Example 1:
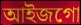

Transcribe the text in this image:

আইজগো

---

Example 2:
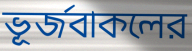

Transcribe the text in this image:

ভূর্জবাকলের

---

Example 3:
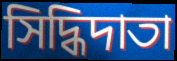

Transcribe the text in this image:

সিদ্ধিদাতা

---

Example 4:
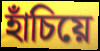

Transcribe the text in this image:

হাঁচিয়ে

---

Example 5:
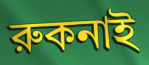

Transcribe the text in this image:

রুকনাই